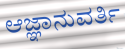
ಆಜ್ಞಾನುವರ್ತಿ